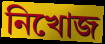
নিখোজ